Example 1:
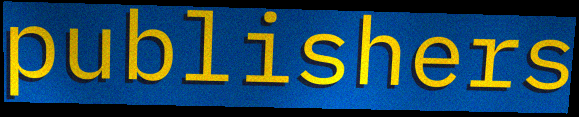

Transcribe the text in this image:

publishers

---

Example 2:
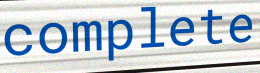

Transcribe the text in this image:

complete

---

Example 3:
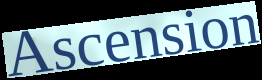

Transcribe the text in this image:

Ascension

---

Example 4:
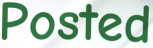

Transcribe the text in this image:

Posted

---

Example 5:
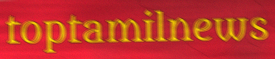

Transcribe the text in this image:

toptamilnews